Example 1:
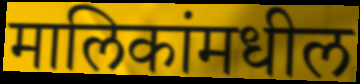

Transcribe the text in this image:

मालिकांमधील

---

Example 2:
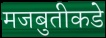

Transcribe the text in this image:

मजबुतीकडे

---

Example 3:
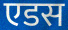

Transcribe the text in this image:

एडस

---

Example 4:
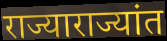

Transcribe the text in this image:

राज्याराज्यांत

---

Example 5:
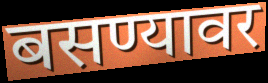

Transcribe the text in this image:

बसण्यावर